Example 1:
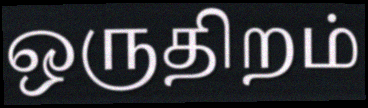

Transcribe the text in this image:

ஒருதிறம்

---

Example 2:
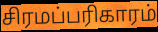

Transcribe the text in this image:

சிரமப்பரிகாரம்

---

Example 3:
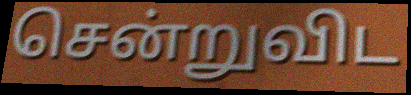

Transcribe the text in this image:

சென்றுவிட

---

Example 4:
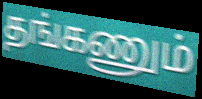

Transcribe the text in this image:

தங்கணும்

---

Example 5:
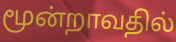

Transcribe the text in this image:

மூன்றாவதில்